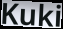
Kuki